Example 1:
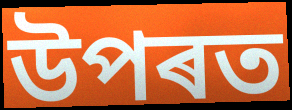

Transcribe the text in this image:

উপৰত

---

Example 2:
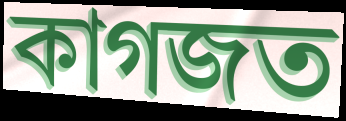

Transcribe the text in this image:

কাগজত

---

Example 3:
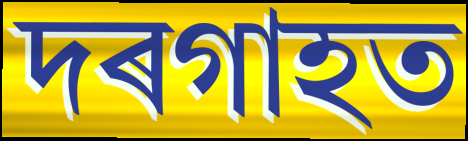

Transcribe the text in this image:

দৰগাহত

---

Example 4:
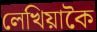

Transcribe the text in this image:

লেখিয়াকৈ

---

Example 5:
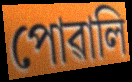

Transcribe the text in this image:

পোৱালি